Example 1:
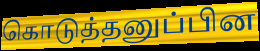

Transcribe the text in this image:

கொடுத்தனுப்பின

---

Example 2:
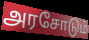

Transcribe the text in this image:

அரசோடும்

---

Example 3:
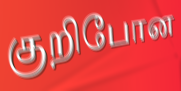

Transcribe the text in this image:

குறிபோன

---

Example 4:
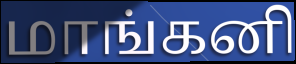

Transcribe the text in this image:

மாங்கனி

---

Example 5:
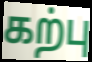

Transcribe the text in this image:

கற்பு